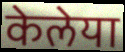
केलेया